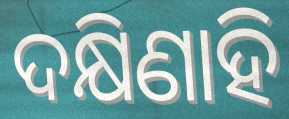
ଦକ୍ଷିଣାହି